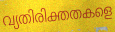
വ്യതിരിക്തതകളെ